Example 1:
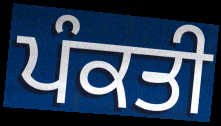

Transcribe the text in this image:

ਪੰਕਤੀ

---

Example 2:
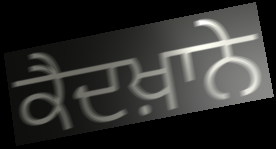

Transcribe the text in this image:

ਕੈਦਖ਼ਾਨੇ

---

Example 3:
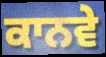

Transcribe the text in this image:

ਕਾਨਵੇ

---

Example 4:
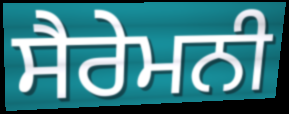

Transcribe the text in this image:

ਸੈਰੇਮਨੀ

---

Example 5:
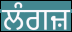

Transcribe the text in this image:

ਲੰਗਜ਼